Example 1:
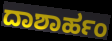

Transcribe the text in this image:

ದಾಶಾರ್ಹಂ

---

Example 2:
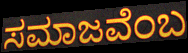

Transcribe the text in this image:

ಸಮಾಜವೆಂಬ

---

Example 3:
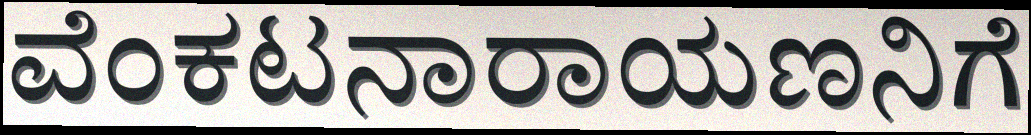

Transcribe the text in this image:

ವೆಂಕಟನಾರಾಯಣನಿಗೆ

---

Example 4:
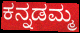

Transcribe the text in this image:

ಕನ್ನಡಮ್ಮ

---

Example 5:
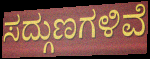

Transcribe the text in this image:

ಸದ್ಗುಣಗಳಿವೆ